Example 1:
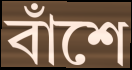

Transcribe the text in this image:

বাঁশে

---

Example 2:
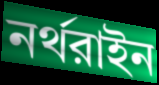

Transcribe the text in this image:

নর্থরাইন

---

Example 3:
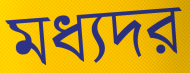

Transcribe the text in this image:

মধ্যদর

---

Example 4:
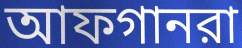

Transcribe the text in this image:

আফগানরা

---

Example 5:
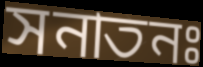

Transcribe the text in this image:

সনাতনঃ